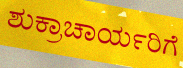
ಶುಕ್ರಾಚಾರ್ಯರಿಗೆ